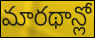
మారథాన్లో